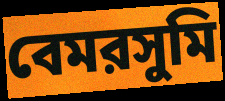
বেমরসুমি